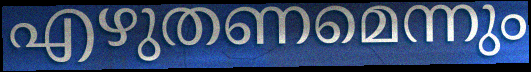
എഴുതണമെന്നും